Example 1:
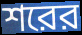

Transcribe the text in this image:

শরের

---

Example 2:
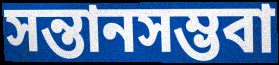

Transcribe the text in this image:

সন্তানসম্ভবা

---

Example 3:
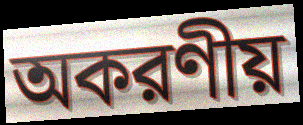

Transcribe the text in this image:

অকরণীয়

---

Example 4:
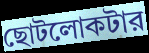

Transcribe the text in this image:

ছোটলোকটার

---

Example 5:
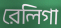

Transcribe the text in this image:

রেলিগা